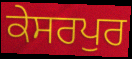
ਕੇਸਰਪੁਰ